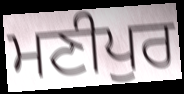
ਮਣੀਪੁਰ